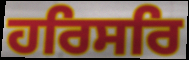
ਹਰਿਸਰਿ